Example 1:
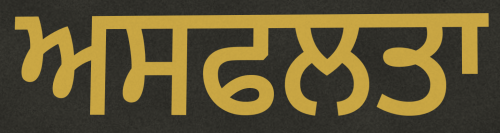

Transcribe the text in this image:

ਅਸਫਲਤਾ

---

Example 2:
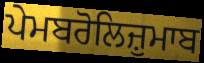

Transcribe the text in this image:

ਪੇਮਬਰੋਲਿਜ਼ੁਮਾਬ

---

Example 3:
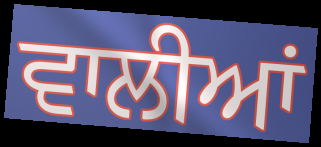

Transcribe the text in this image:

ਵਾਲੀਆਂ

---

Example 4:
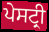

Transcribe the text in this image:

ਪੇਸਟ੍ਰੀ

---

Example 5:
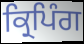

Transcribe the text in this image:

ਕ੍ਰਿਪਿੰਗ